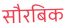
सौरबिक